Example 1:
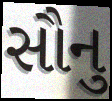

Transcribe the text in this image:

સૌનુ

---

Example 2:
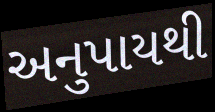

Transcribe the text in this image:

અનુપાયથી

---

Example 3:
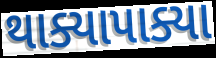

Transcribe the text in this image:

થાક્યાપાક્યા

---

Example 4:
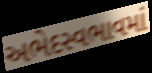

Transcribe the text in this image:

અભેદસ્વભાવમાં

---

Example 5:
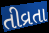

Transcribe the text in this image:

તીવ્રતા